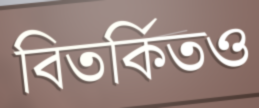
বিতর্কিতও